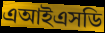
এআইএসডি